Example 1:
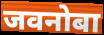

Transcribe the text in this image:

जवनोबा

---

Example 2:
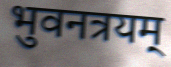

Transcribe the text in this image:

भुवनत्रयम्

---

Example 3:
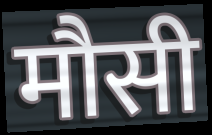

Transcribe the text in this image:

मौसी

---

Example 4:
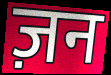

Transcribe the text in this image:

ज़न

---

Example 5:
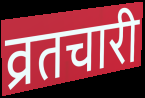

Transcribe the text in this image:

व्रतचारी